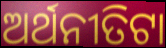
ଅର୍ଥନୀତିଟା